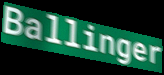
Ballinger